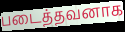
படைத்தவனாக